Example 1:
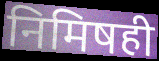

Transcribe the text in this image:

निमिषही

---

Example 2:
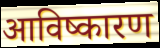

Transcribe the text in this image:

आविष्कारण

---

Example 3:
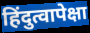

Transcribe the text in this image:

हिंदुत्वापेक्षा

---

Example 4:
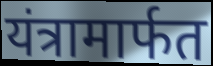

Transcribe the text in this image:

यंत्रामार्फत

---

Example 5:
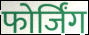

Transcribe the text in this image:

फोर्जिंग